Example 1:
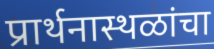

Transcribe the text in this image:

प्रार्थनास्थळांचा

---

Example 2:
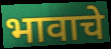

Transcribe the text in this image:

भावाचे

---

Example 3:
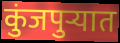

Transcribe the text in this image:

कुंजपुऱ्यात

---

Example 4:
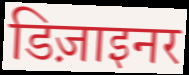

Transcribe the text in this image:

डिज़ाइनर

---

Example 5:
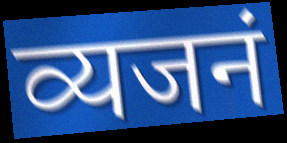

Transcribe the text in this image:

व्यजनं